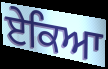
ਏਕਿਆ